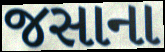
જસાના